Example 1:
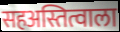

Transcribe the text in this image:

सहअस्तित्वाला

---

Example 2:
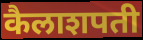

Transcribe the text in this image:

कैलाशपती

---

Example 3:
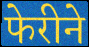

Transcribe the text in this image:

फेरीने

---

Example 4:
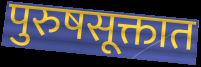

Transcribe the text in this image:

पुरुषसूक्तात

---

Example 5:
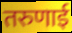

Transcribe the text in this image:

तरुणाई